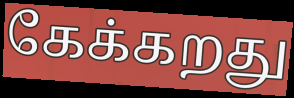
கேக்கறது